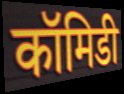
कॉमिडी